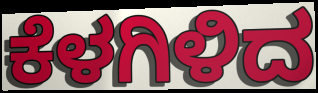
ಕೆಳಗಿಳಿದ